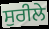
ਸੁਰੀਲੇ